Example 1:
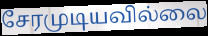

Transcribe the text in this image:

சேரமுடியவில்லை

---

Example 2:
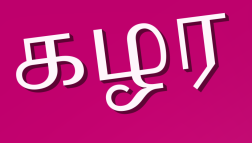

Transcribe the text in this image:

கழர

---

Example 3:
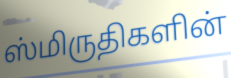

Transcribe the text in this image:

ஸ்மிருதிகளின்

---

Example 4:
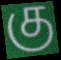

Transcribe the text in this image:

கு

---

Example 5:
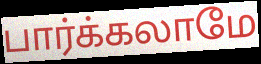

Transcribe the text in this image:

பார்க்கலாமே